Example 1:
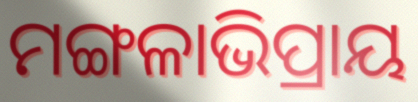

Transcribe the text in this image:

ମଙ୍ଗଳାଭିପ୍ରାୟ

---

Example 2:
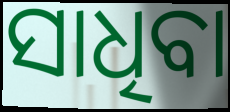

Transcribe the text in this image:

ସାଧିବା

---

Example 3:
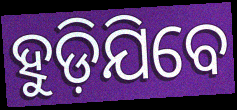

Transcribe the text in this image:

ହୁଡ଼ିଯିବେ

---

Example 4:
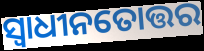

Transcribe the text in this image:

ସ୍ୱାଧୀନତୋତ୍ତର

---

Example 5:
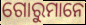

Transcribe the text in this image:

ଗୋରୁମାନେ